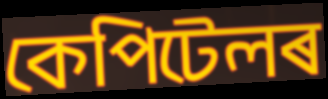
কেপিটেলৰ